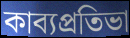
কাব্যপ্রতিভা